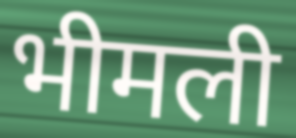
भीमली